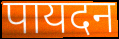
पायदन